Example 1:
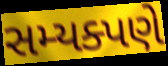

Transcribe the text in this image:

સમ્યક્પણે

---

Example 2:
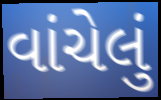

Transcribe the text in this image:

વાંચેલું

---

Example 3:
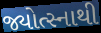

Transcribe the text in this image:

જ્યોત્સ્નાથી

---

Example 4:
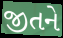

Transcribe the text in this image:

જીતને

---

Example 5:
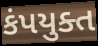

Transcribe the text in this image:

કંપયુક્ત